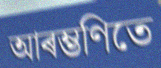
আৰম্ভণিতে